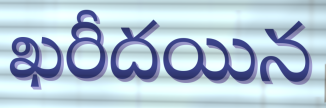
ఖరీదయిన